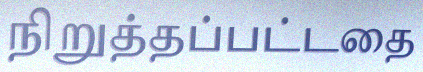
நிறுத்தப்பட்டதை